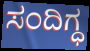
ಸಂದಿಗ್ಧ